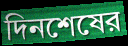
দিনশেষের